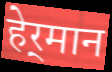
हेर्मान